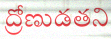
ద్రోణుడతని